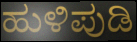
ಹುಳಿಪುಡಿ